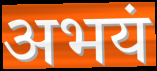
अभयं